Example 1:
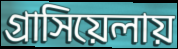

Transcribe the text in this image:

গ্রাসিয়েলায়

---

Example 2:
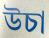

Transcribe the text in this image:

উচা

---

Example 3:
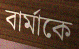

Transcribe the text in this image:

বার্মাকে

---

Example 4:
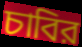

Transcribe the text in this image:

চাবির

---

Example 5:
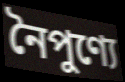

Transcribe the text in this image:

নৈপুণ্যে